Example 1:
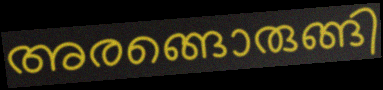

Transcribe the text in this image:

അരങ്ങൊരുങ്ങി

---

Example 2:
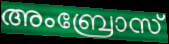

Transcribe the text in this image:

അംബ്രോസ്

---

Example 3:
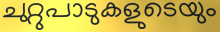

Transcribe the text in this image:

ചുറ്റുപാടുകളുടെയും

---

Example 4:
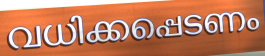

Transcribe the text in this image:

വധിക്കപ്പെടണം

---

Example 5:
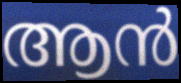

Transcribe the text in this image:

ആൻ